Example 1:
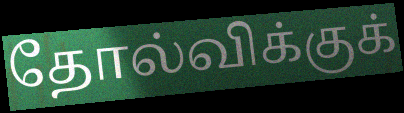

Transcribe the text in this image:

தோல்விக்குக்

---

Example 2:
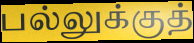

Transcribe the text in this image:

பல்லுக்குத்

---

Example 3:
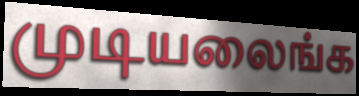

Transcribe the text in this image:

முடியலைங்க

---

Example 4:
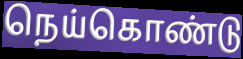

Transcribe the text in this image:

நெய்கொண்டு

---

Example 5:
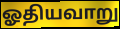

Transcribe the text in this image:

ஓதியவாறு